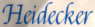
Heidecker